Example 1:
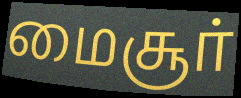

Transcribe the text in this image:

மைசூர்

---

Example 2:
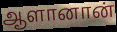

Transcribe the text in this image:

ஆளானான்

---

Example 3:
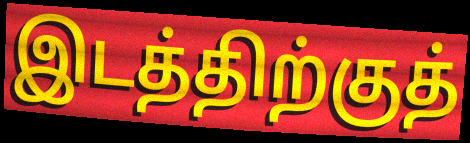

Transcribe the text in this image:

இடத்திற்குத்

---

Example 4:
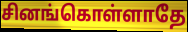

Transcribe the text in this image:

சினங்கொள்ளாதே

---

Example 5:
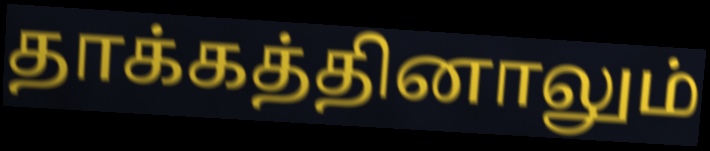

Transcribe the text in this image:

தாக்கத்தினாலும்